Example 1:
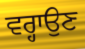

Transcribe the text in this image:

ਵਰ੍ਹਾਉਣ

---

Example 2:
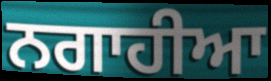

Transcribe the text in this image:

ਨਗਾਹੀਆ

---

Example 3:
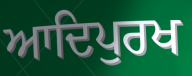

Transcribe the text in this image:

ਆਦਿਪੁਰਖ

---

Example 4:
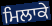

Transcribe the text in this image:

ਮਿਲਾਕੇ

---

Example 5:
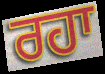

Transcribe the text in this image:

ਰਹਾ